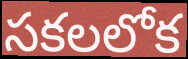
సకలలోక